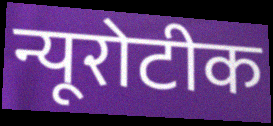
न्यूरोटीक